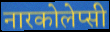
नारकोलेप्सी